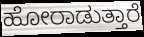
ಹೋರಾಡುತ್ತಾರೆ